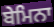
ਬੇਮਿਨਾ